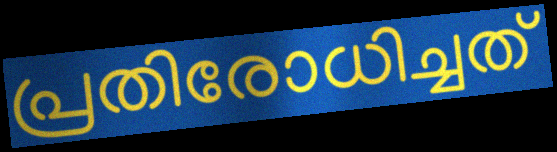
പ്രതിരോധിച്ചത്